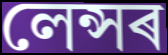
লেন্সৰ